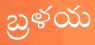
బ్రళయ